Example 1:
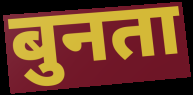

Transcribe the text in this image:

बुनता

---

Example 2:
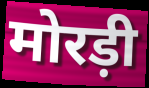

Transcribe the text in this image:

मोरड़ी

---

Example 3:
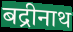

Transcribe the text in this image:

बद्रीनाथ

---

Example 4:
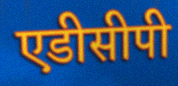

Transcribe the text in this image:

एडीसीपी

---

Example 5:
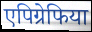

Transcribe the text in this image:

एपिग्रेफिया